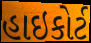
હાઇકોર્ટ